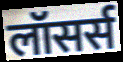
लॉसर्स